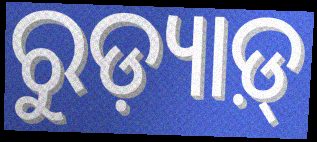
ରୁଡ଼୍ୟାଡ଼୍